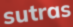
sutras